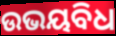
ଉଭୟବିଧ